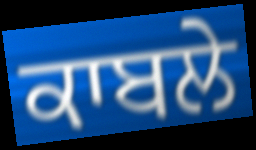
ਕਾਬਲੇ